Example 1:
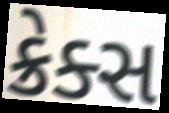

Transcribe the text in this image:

ક્રેક્સ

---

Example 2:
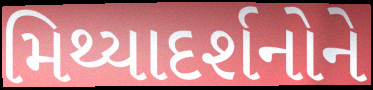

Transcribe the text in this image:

મિથ્યાદર્શનોને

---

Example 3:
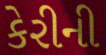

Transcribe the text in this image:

કેરીની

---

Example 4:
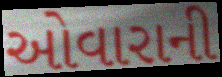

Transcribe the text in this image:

ઓવારાની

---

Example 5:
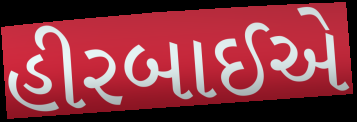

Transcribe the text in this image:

હીરબાઈએ